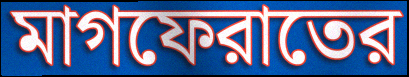
মাগফেরাতের